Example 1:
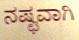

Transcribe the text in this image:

ನಷ್ಟವಾಗಿ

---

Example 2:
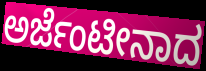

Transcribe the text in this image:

ಅರ್ಜೆಂಟೀನಾದ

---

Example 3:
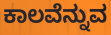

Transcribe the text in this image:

ಕಾಲವೆನ್ನುವ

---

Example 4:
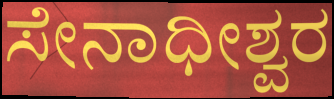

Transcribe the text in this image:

ಸೇನಾಧೀಶ್ವರ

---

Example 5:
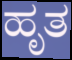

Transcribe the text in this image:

ಹೃತ